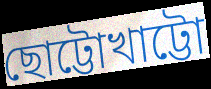
ছোট্টোখাট্টো